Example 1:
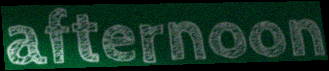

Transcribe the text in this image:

afternoon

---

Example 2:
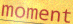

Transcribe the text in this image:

moment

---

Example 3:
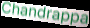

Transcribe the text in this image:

Chandrappa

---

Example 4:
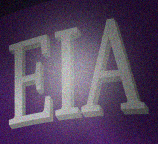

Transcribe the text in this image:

EIA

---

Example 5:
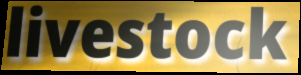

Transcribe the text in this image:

livestock